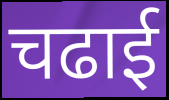
चढाई